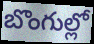
బొంగుల్లో